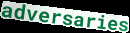
adversaries